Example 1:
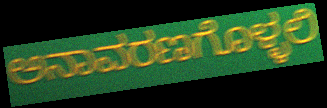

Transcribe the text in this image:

ಅನಾವರಣಗೊಳ್ಳಲಿ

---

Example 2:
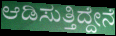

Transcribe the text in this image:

ಆಡಿಸುತ್ತಿದ್ದೇನೆ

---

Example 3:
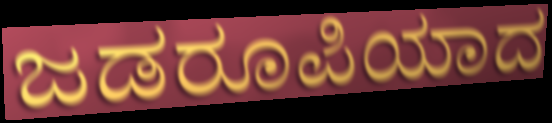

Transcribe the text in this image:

ಜಡರೂಪಿಯಾದ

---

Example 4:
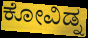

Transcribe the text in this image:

ಕೋವಿಡ್ನ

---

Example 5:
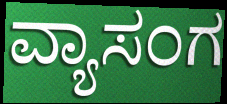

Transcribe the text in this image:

ವ್ಯಾಸಂಗ